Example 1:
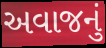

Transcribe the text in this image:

અવાજનું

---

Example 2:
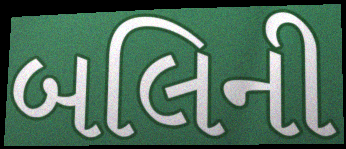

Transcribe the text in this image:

બલિની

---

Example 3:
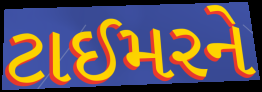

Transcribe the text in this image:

ટાઈમરને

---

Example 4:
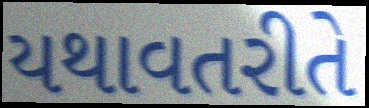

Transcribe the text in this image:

યથાવતરીતે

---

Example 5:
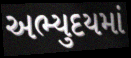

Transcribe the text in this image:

અભ્યુદયમાં